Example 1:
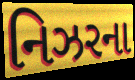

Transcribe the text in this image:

નિઝરના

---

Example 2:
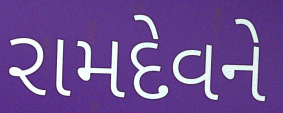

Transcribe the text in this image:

રામદેવને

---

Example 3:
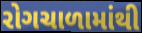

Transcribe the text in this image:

રોગચાળામાંથી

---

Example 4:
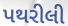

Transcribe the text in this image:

પથરીલી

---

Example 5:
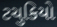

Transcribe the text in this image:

ટચુકિયો